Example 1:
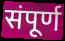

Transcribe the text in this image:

संपूर्ण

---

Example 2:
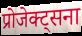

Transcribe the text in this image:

प्रोजेक्ट्सना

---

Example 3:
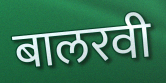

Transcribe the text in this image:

बालरवी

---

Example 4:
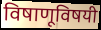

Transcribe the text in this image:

विषाणूविषयी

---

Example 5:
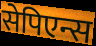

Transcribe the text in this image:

सेपिएन्स